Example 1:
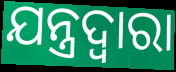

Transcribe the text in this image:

ଯନ୍ତ୍ରଦ୍ଵାରା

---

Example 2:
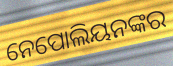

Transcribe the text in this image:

ନେପୋଲିୟନଙ୍କର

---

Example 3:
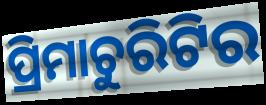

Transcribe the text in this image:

ପ୍ରିମାଚୁରିଟିର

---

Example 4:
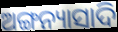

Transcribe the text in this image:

ଅଙ୍ଗନ୍ୟାସାଦି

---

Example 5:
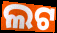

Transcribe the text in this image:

ଲଟ